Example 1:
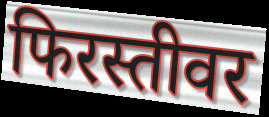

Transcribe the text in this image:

फिरस्तीवर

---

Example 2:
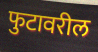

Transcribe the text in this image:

फुटावरील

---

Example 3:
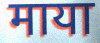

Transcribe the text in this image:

माया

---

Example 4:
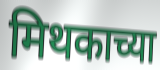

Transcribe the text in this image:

मिथकाच्या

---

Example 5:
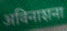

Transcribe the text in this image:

अविनाशना